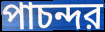
পাচন্দর